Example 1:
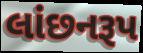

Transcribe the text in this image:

લાંછનરૂપ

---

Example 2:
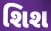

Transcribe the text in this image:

શિશ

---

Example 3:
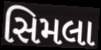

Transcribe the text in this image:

સિમલા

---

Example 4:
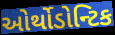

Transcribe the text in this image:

ઓર્થોડોન્ટિક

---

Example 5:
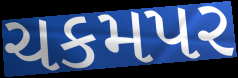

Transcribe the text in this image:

ચકમપર